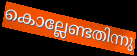
കൊല്ലേണ്ടതിന്നു